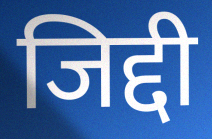
जिद्दी